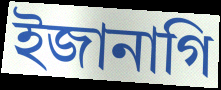
ইজানাগি